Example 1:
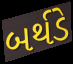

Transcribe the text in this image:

બર્થડે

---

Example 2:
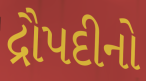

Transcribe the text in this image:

દ્રૌપદીનો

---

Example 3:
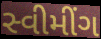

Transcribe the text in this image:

સ્વીમીંગ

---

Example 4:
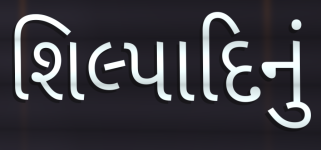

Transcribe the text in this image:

શિલ્પાદિનું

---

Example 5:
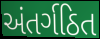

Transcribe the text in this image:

અંતર્ગઠિત